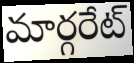
మార్గరేట్